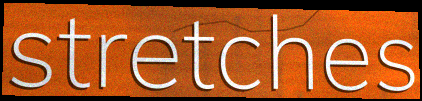
stretches